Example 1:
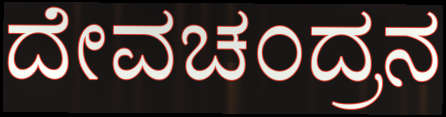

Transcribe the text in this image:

ದೇವಚಂದ್ರನ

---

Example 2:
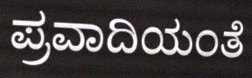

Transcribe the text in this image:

ಪ್ರವಾದಿಯಂತೆ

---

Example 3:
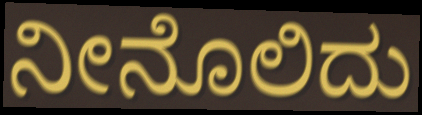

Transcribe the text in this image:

ನೀನೊಲಿದು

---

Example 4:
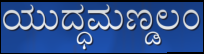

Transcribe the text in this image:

ಯುದ್ಧಮಣ್ಡಲಂ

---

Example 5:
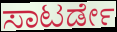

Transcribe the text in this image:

ಸಾಟರ್ಡೇ